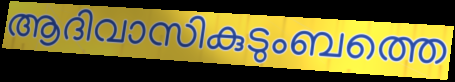
ആദിവാസികുടുംബത്തെ